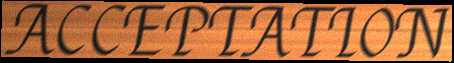
ACCEPTATION